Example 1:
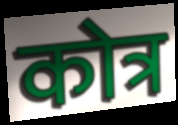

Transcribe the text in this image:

कोत्र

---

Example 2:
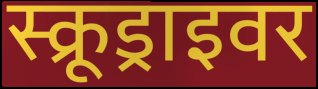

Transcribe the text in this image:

स्क्रूड्राइवर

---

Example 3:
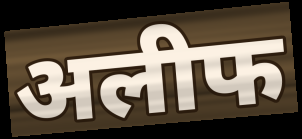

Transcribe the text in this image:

अलीफ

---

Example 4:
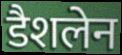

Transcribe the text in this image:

डैशलेन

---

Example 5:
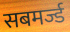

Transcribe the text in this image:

सबमर्ज्ड